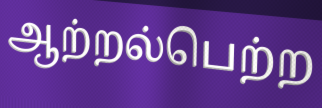
ஆற்றல்பெற்ற